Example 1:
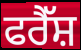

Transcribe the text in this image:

ਫਰੈੱਸ਼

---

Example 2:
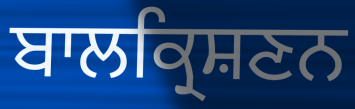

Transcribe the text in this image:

ਬਾਲਕ੍ਰਿਸ਼ਣਨ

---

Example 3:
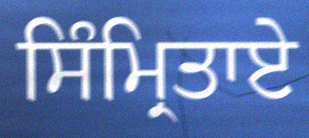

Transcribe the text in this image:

ਸਿੰਮ੍ਰਿਤਾਏ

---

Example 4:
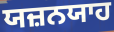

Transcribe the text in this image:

ਯਜ਼ਨਯਾਹ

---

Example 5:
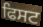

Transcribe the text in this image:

ਫਿਸਟ